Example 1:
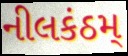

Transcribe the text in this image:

નીલકંઠમ્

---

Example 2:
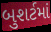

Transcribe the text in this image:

બુશર્ટમાં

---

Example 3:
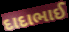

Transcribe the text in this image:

દાદાભાઈ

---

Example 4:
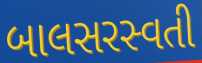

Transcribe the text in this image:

બાલસરસ્વતી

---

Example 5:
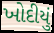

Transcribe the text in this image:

ખોદીયું